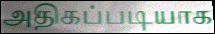
அதிகப்படியாக